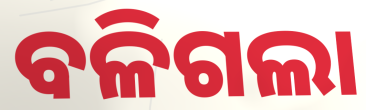
ବଳିଗଲା